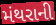
મંથરાની